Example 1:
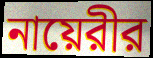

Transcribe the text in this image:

নায়েরীর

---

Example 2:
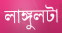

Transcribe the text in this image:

লাঙ্গুলটা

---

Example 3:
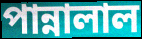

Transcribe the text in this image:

পান্নালাল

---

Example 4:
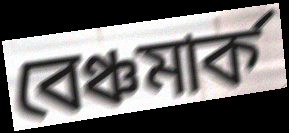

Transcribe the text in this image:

বেঞ্চমার্ক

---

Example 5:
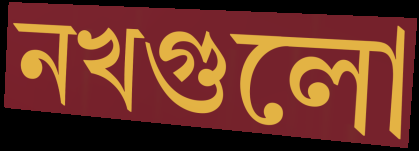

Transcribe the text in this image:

নখগুলো